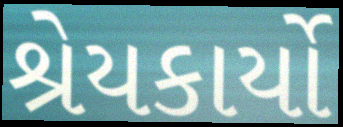
શ્રેયકાર્યો